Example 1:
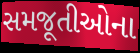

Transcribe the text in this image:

સમજૂતીઓના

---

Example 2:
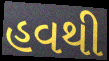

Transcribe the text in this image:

હવથી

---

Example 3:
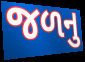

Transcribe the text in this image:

જળનુ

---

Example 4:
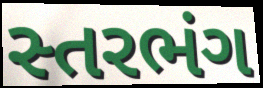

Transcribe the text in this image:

સ્તરભંગ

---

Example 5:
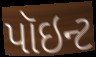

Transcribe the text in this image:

પૉઇન્ટ